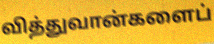
வித்துவான்களைப்